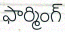
ఫార్మింగ్